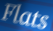
Flats